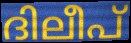
ദിലീപ്